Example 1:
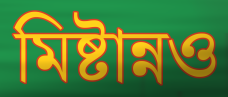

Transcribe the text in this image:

মিষ্টান্নও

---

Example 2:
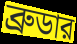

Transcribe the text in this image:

ব্রুডার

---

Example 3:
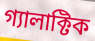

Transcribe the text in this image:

গ্যালাক্টিক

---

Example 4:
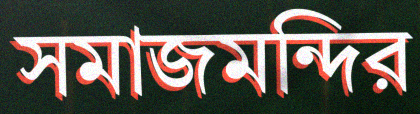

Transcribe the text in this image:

সমাজমন্দির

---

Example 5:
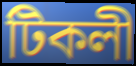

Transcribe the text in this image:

টিকলী